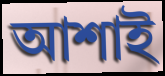
আশাই